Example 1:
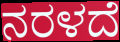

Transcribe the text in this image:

ನರಳದೆ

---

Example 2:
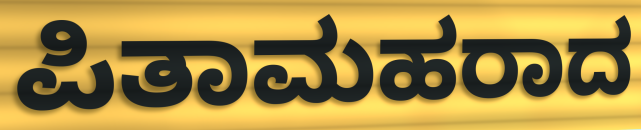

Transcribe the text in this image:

ಪಿತಾಮಹರಾದ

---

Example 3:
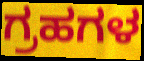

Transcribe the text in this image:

ಗ್ರಹಗಳ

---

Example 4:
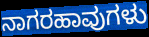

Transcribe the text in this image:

ನಾಗರಹಾವುಗಳು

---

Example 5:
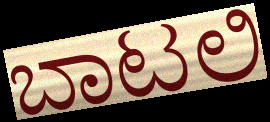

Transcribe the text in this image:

ಬಾಟಲಿ